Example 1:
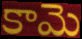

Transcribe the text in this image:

కామె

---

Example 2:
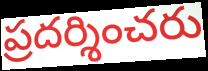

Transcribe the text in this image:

ప్రదర్శించరు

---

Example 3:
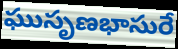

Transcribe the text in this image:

ఘుసృణభాసురే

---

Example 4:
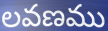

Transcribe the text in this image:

లవణము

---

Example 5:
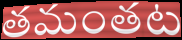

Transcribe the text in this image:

తమంతట